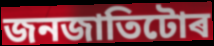
জনজাতিটোৰ